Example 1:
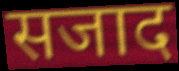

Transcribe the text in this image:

सजाद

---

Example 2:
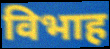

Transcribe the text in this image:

विभाह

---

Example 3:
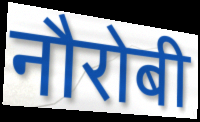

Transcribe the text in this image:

नौरोबी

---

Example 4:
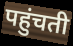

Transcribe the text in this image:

पहुंचती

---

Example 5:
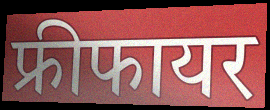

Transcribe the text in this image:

फ्रीफायर